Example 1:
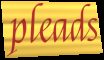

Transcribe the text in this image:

pleads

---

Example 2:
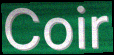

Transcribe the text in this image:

Coir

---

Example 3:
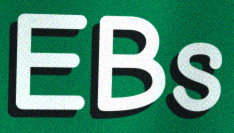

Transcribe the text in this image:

EBs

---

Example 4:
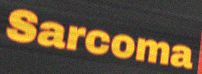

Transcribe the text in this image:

Sarcoma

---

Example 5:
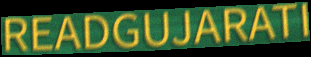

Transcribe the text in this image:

READGUJARATI